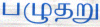
பழுதறு